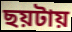
ছয়টায়